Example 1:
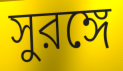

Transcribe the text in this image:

সুরঙ্গে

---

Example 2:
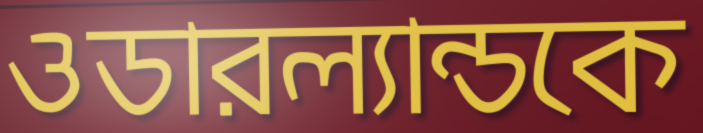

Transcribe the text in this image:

ওডারল্যান্ডকে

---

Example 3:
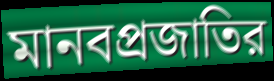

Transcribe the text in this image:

মানবপ্রজাতির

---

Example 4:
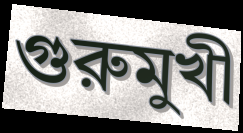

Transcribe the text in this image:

গুরুমুখী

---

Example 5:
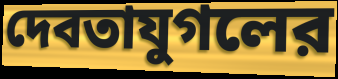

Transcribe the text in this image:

দেবতাযুগলের